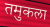
तमुकला